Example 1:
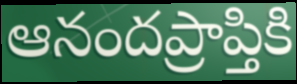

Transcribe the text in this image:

ఆనందప్రాప్తికి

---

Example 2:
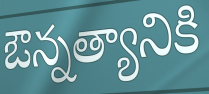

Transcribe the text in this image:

ఔన్నత్యానికి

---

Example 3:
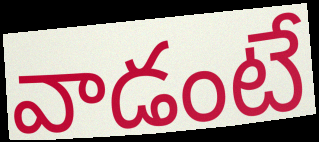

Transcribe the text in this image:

వాడంటే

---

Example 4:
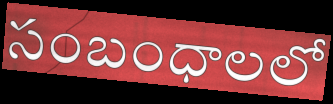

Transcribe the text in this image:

సంబంధాలలో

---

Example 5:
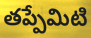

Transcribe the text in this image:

తప్పేమిటి